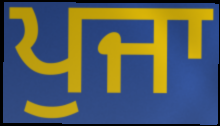
ਪੁਜਾ